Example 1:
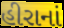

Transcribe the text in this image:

હીરાનાં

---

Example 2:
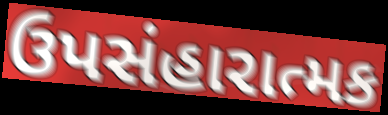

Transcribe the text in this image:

ઉપસંહારાત્મક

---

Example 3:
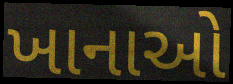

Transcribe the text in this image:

ખાનાઓ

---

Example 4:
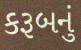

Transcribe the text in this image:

કરૂબનું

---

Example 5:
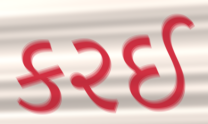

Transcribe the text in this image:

કરઈ